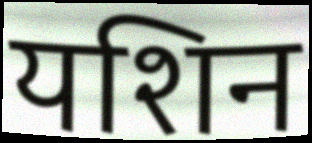
यशिन